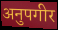
अनुपगीर